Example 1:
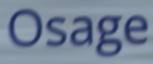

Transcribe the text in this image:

Osage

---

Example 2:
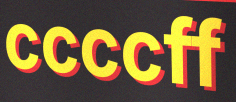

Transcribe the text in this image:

ccccff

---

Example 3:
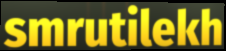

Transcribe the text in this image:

smrutilekh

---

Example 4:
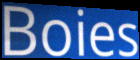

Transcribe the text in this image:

Boies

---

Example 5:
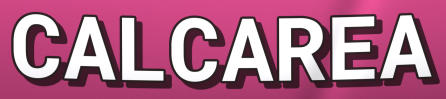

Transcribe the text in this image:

CALCAREA